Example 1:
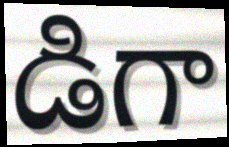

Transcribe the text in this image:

డిగా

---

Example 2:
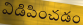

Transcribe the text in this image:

విడిపించడం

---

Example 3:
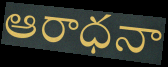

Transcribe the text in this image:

ఆరాధనా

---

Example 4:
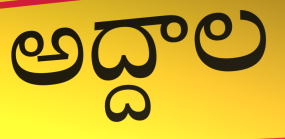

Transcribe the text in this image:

అద్దాల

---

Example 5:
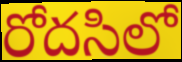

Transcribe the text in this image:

రోదసిలో